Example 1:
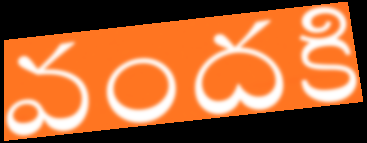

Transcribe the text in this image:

వందకి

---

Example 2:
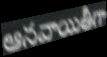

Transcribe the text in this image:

ఆనవాయితీగా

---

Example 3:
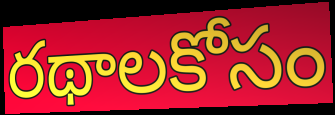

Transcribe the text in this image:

రథాలకోసం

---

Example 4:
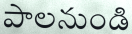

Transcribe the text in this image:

పాలనుండి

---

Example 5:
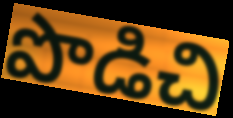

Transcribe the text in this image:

పొడిచి